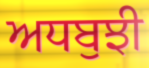
ਅਧਬੁਝੀ